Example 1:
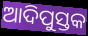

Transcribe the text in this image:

ଆଦିପୁସ୍ତକ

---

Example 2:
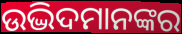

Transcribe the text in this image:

ଉଦ୍ଭିଦମାନଙ୍କର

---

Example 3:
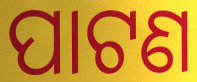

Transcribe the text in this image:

ପାଟଣ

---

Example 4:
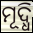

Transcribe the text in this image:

ମୂଦ୍ଧି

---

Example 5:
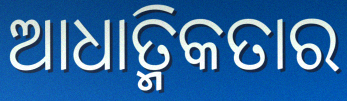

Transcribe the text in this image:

ଆଧାତ୍ମିକତାର